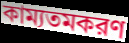
কাম্যতমকরণ